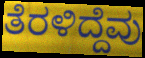
ತೆರಳಿದ್ದೆವು